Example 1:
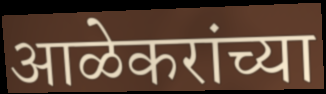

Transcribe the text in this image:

आळेकरांच्या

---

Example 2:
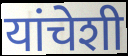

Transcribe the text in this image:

यांचेशी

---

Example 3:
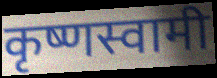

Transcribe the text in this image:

कृष्णस्वामी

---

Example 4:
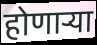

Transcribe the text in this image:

होणार्‍या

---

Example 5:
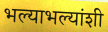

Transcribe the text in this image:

भल्याभल्यांशी